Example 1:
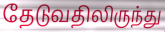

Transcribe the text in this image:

தேடுவதிலிருந்து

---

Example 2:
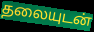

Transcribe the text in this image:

தலையுடன்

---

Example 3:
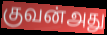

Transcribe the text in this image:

குவன்அது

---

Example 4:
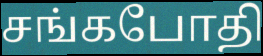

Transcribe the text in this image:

சங்கபோதி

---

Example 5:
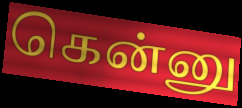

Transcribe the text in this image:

கென்னு